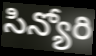
సిన్యోరి